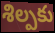
శిల్పకు